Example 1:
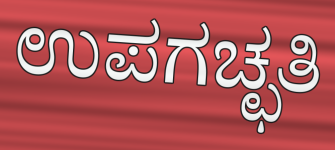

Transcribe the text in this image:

ಉಪಗಚ್ಛತಿ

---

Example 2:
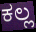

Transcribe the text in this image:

ಕಲ್ಲ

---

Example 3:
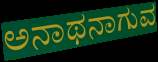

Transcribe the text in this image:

ಅನಾಥನಾಗುವ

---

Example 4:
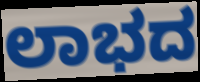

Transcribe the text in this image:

ಲಾಭದ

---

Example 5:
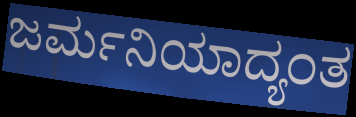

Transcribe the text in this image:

ಜರ್ಮನಿಯಾದ್ಯಂತ